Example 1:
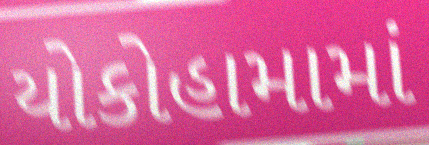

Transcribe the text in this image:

યોકોહામામાં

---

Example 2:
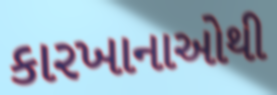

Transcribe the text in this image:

કારખાનાઓથી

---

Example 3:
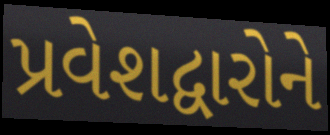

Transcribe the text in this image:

પ્રવેશદ્વારોને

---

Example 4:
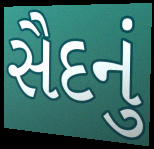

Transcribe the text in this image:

સૈદનું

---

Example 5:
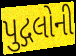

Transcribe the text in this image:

પુદ્ગલોની